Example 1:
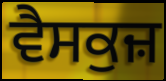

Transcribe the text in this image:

ਵੈਸਕੁਜ਼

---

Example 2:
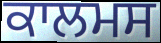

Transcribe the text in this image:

ਕਾਲਮਸ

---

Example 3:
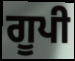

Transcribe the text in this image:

ਗੂਪੀ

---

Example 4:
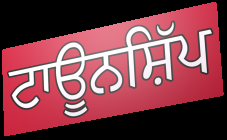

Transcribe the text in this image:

ਟਾਊਨਸ਼ਿੱਪ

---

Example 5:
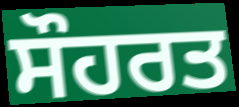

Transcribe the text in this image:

ਸੌਹਰਤ